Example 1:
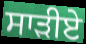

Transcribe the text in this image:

ਸਾੜੀਏ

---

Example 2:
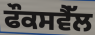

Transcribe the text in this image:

ਫੌਕਸਵੈੱਲ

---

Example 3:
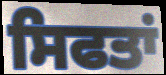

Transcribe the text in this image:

ਸਿਫਤਾਂ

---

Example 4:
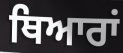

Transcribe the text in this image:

ਥਿਆਰਾਂ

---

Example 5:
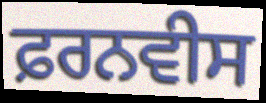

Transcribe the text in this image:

ਫ਼ਰਨਵੀਸ